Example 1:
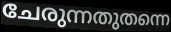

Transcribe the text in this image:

ചേരുന്നതുതന്നെ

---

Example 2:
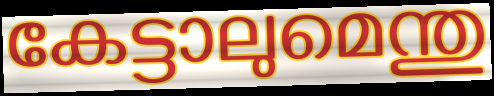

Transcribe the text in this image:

കേട്ടാലുമെന്തു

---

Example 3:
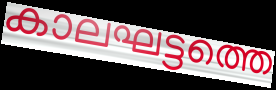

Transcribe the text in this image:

കാലഘട്ടത്തെ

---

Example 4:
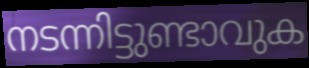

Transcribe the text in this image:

നടന്നിട്ടുണ്ടാവുക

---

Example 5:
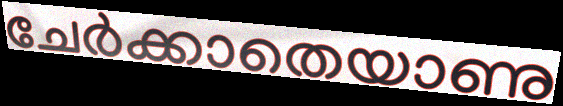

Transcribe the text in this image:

ചേർക്കാതെയാണു